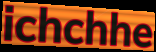
ichchhe